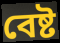
বেষ্ট